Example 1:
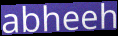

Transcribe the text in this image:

abheeh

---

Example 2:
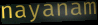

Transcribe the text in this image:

nayanam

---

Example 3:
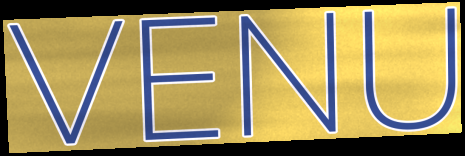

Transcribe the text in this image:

VENU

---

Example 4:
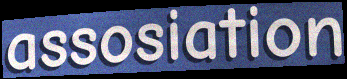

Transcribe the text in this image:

assosiation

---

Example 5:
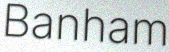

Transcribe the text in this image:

Banham